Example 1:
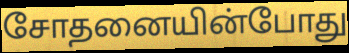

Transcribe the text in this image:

சோதனையின்போது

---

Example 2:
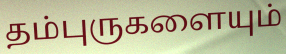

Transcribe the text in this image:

தம்புருகளையும்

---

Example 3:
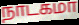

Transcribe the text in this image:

நாடகமா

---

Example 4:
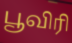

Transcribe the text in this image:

பூவிரி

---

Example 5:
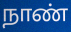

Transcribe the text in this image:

நாண்